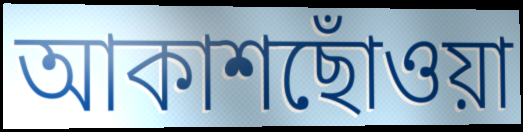
আকাশছোঁওয়া